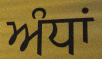
ਅੰਧਾਂ